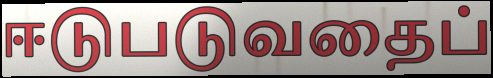
ஈடுபடுவதைப்